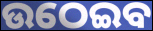
ଉଠେଇବ